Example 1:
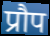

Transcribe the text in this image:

प्रौप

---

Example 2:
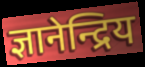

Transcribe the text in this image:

ज्ञानेन्द्रिय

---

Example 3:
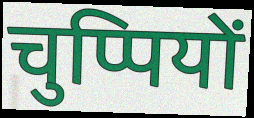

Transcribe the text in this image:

चुप्पियों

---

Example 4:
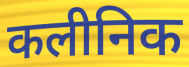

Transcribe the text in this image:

कलीनिक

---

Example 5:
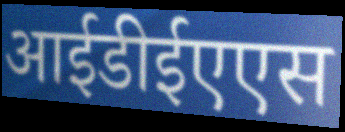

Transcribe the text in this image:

आईडीईएएस